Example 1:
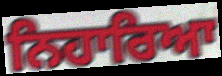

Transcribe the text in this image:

ਨਿਹਾਰਿਆ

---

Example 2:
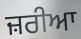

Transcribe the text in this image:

ਜ਼ਰੀਆ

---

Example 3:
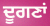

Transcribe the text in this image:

ਦੂਗਣਾਂ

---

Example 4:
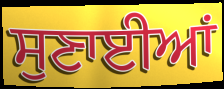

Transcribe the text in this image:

ਸੁਣਾਈਆਂ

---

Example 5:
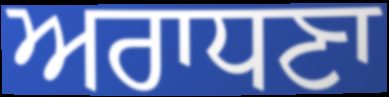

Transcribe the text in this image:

ਅਰਾਧਣਾ